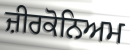
ਜ਼ੀਰਕੋਨਿਅਮ